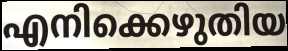
എനിക്കെഴുതിയ